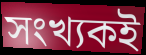
সংখ্যকই